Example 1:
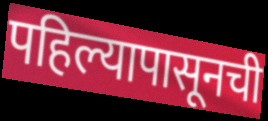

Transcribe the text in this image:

पहिल्यापासूनची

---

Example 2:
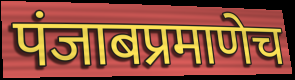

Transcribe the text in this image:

पंजाबप्रमाणेच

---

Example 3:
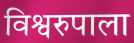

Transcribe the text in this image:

विश्वरुपाला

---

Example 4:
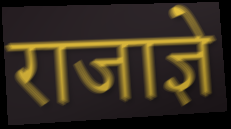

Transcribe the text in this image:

राजाज्ञे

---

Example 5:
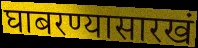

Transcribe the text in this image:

घाबरण्यासारखं